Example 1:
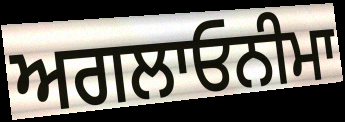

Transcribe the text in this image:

ਅਗਲਾਓਨੀਮਾ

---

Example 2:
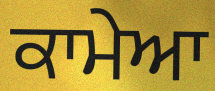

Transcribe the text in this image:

ਕਾਮੇਆ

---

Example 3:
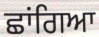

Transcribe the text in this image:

ਛਾਂਗਿਆ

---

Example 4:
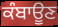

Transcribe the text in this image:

ਕੰਬਾਊਣ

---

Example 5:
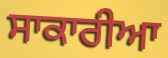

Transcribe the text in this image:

ਸਾਕਾਰੀਆ